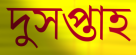
দুসপ্তাহ